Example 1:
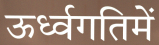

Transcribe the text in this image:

ऊर्ध्वगतिमें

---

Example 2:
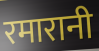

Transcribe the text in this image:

रमारानी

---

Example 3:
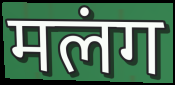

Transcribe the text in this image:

मलंग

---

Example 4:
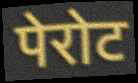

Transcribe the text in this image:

पेरोट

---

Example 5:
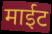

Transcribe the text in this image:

माईट